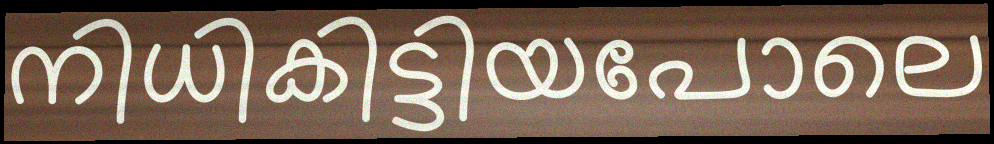
നിധികിട്ടിയപോലെ